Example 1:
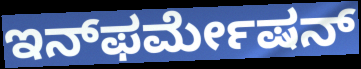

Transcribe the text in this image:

ಇನ್‌ಫರ್ಮೇಷನ್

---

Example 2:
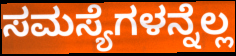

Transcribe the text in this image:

ಸಮಸ್ಯೆಗಳನ್ನೆಲ್ಲ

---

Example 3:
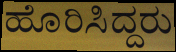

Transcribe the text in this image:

ಹೊರಿಸಿದ್ದರು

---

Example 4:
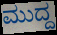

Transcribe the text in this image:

ಮುದ್ದ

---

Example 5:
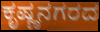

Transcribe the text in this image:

ಕೃಷ್ಣನಗರದ